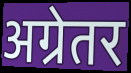
अग्रेतर